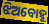
ଝିଅବୋହୂ